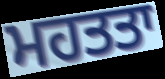
ਮਹਤਤਾ